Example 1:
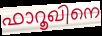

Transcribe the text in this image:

ഫാറൂഖിനെ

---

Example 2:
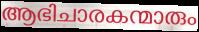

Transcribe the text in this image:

ആഭിചാരകന്മാരും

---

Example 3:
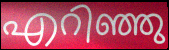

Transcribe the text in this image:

എറിഞ്ഞു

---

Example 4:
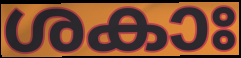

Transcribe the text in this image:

ശകാഃ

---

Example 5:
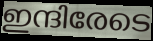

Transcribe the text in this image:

ഇന്ദിരേടെ